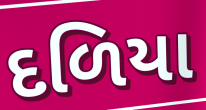
દળિયા